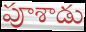
పూశాడు